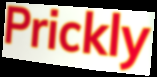
Prickly